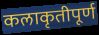
कलाकृतीपूर्ण